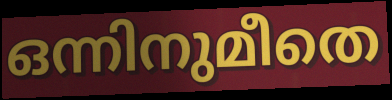
ഒന്നിനുമീതെ